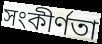
সংকীর্ণতা